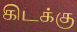
கிடக்கு